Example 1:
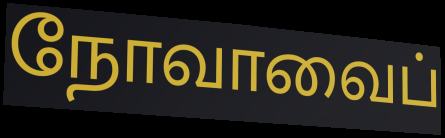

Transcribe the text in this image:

நோவாவைப்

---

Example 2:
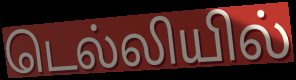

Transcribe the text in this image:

டெல்லியில்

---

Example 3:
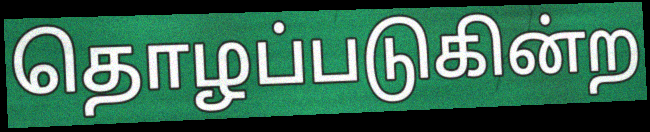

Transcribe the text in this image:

தொழப்படுகின்ற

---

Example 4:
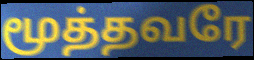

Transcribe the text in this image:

மூத்தவரே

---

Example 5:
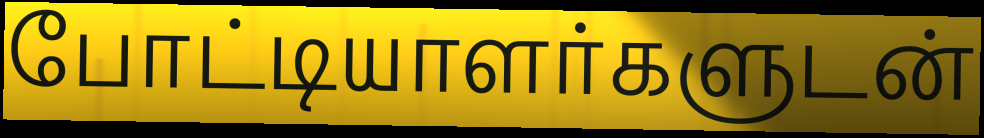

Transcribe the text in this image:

போட்டியாளர்களுடன்